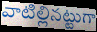
వాటిల్లినట్టుగా